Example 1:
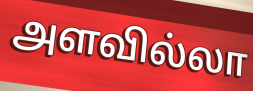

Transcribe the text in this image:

அளவில்லா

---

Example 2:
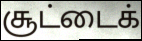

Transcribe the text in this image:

சூட்டைக்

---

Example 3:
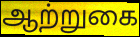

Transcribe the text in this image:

ஆற்றுகை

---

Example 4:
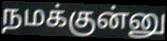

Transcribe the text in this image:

நமக்குன்னு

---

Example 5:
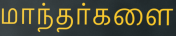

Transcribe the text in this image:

மாந்தர்களை